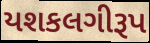
યશકલગીરૂપ